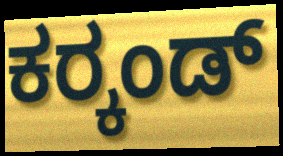
ಕರ್‍ಕಂಡ್